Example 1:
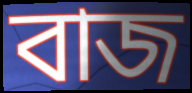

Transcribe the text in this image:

বাজ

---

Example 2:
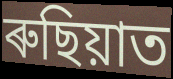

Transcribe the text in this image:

ৰুছিয়াত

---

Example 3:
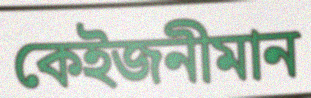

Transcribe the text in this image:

কেইজনীমান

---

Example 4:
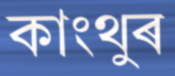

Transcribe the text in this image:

কাংথুৰ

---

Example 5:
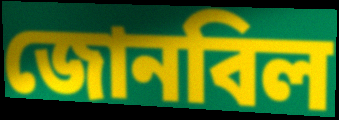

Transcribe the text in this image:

জোনবিল